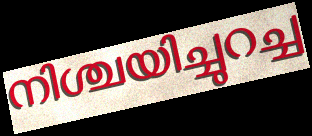
നിശ്ചയിച്ചുറച്ച